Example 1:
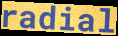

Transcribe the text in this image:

radial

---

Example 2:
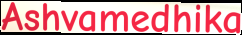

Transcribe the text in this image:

Ashvamedhika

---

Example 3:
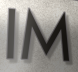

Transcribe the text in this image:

IM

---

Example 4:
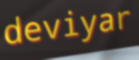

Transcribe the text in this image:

deviyar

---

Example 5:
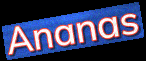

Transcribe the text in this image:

Ananas